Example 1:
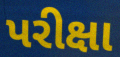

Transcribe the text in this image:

પરીક્ષા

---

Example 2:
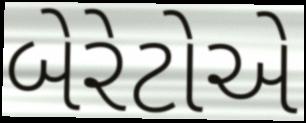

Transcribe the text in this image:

બેરેટોએ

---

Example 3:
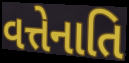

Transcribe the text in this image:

વત્તેનાતિ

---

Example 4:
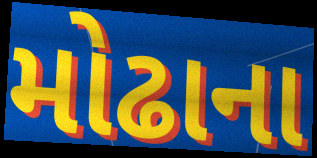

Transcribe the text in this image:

મોઢાના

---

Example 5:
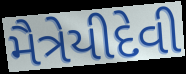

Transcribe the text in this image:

મૈત્રેયીદેવી